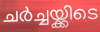
ചർച്ചയ്ക്കിടെ